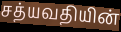
சத்யவதியின்